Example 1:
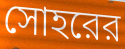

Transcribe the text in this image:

সোহরের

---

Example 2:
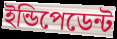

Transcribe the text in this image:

ইন্ডিপেডেন্ট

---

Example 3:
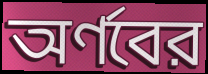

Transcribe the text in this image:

অর্ণবের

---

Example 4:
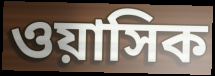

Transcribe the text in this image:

ওয়াসিক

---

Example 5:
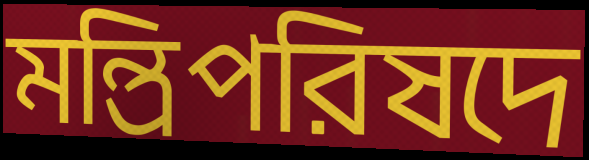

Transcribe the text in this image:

মন্ত্রিপরিষদে